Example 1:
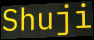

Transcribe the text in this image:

Shuji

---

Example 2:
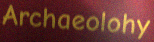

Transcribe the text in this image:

Archaeolohy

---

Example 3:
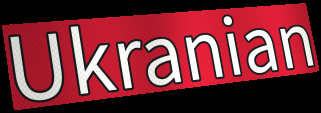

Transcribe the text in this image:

Ukranian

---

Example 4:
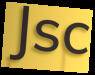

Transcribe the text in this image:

Jsc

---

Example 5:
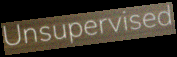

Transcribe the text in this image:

Unsupervised